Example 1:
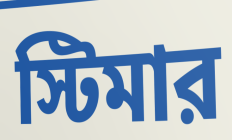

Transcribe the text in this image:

স্টিমার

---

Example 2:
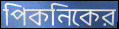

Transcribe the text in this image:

পিকনিকের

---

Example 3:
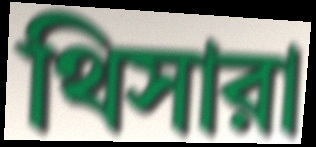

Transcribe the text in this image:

থিসারা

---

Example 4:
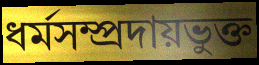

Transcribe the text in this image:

ধর্মসম্প্রদায়ভুক্ত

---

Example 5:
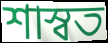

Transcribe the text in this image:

শাস্বত